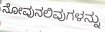
ನೋವುನಲಿವುಗಳನ್ನು